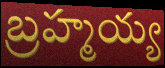
బ్రహ్మయ్య